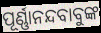
ପୂର୍ଣ୍ଣାନନ୍ଦବାବୁଙ୍କ